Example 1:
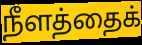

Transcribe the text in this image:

நீளத்தைக்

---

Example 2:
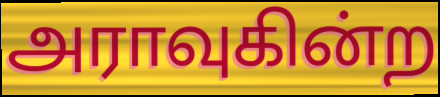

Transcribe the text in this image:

அராவுகின்ற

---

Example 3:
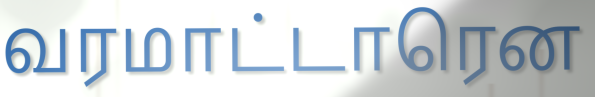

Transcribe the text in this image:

வரமாட்டாரென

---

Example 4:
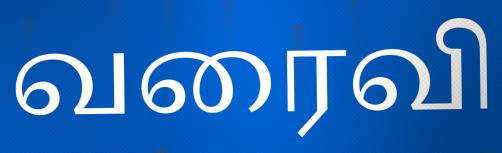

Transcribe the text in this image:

வரைவி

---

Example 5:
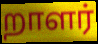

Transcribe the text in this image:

றாளர்